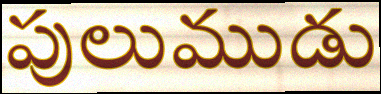
పులుముడు